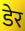
डेर